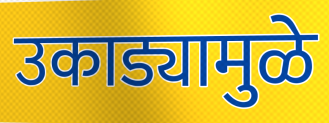
उकाड्यामुळे